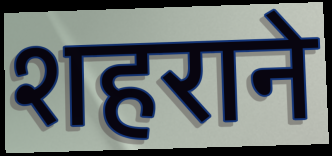
शहराने